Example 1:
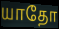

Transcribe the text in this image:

யாதோ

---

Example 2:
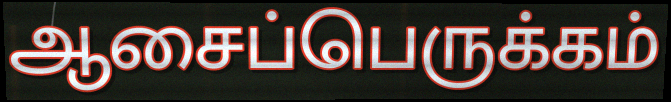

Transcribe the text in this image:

ஆசைப்பெருக்கம்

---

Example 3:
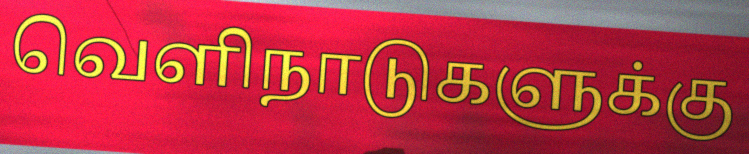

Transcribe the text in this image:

வெளிநாடுகளுக்கு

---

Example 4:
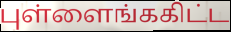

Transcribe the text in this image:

புள்ளைங்ககிட்ட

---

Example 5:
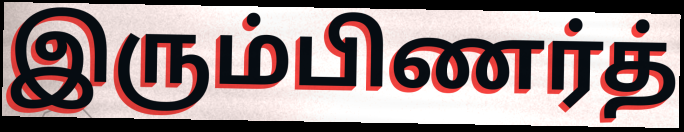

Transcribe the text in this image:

இரும்பிணர்த்